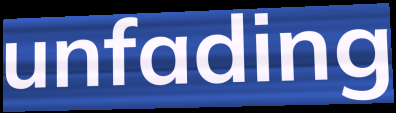
unfading